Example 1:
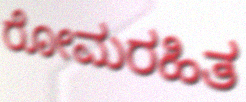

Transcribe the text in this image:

ರೋಮರಹಿತ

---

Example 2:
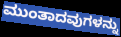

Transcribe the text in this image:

ಮುಂತಾದವುಗಳನ್ನು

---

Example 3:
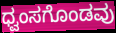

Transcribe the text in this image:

ಧ್ವಂಸಗೊಂಡವು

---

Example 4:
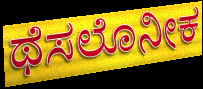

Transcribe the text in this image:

ಥೆಸಲೊನೀಕ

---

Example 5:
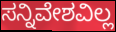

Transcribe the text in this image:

ಸನ್ನಿವೇಶವಿಲ್ಲ